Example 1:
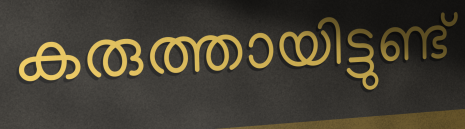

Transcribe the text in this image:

കരുത്തായിട്ടുണ്ട്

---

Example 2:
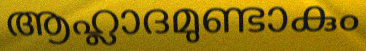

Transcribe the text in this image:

ആഹ്ലാദമുണ്ടാകും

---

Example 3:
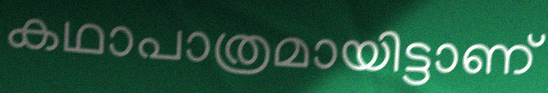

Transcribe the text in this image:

കഥാപാത്രമായിട്ടാണ്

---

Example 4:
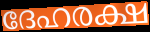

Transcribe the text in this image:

ദേഹരക്ഷ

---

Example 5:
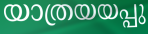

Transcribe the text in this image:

യാത്രയയപ്പു